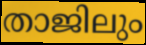
താജിലും